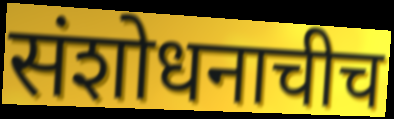
संशोधनाचीच